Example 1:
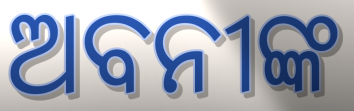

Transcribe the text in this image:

ଅବନୀଙ୍କ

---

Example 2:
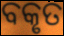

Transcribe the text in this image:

ବକୃତ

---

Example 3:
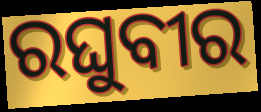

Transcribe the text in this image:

ରଘୁବୀର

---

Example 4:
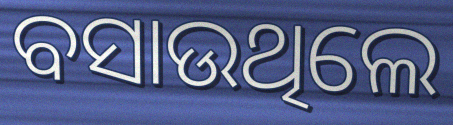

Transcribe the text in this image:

ବସାଉଥିଲେ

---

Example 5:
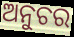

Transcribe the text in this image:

ଅନୁଚର